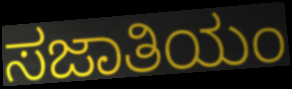
ಸಜಾತಿಯಂ